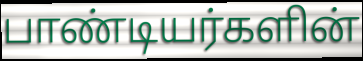
பாண்டியர்களின்